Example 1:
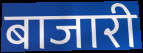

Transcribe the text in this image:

बाजारी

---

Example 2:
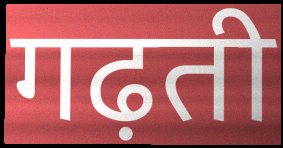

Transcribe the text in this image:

गढ़ती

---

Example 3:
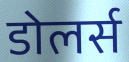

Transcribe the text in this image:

डोलर्स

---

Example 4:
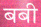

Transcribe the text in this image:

बबी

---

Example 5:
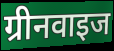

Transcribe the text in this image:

ग्रीनवाइज